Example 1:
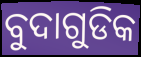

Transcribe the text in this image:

ବୁଦାଗୁଡିକ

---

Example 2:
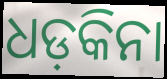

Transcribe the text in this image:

ଧଡ଼କିନା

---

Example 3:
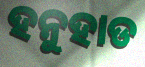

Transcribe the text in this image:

ହନୁହାଡ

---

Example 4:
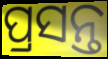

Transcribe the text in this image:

ପ୍ରସନ୍ତ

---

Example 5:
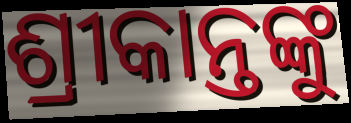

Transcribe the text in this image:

ଶ୍ରୀକାନ୍ତଙ୍କୁ